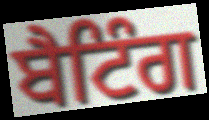
ਬੈਟਿੰਗ